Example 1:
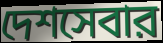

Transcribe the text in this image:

দেশসেবার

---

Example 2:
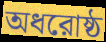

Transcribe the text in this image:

অধরোষ্ঠ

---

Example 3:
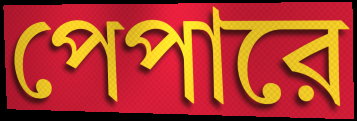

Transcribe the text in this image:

পেপারে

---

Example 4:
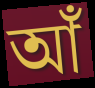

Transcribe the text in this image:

আঁ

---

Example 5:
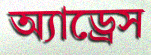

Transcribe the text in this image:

অ্যাড্রেস